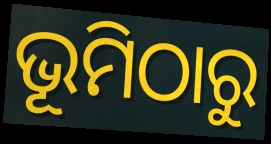
ଭୂମିଠାରୁ